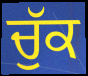
ਚੁੱਕ